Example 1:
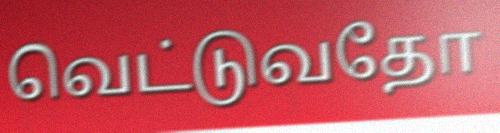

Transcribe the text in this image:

வெட்டுவதோ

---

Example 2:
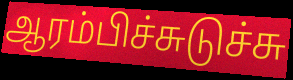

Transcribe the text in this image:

ஆரம்பிச்சுடுச்சு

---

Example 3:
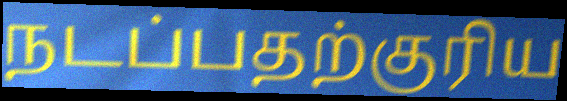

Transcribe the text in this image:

நடப்பதற்குரிய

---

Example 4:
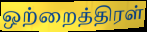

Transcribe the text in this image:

ஒற்றைத்திரள்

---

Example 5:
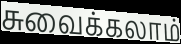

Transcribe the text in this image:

சுவைக்கலாம்